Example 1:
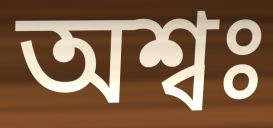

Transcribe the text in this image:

অশ্বঃ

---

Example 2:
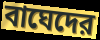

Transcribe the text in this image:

বাঘেদের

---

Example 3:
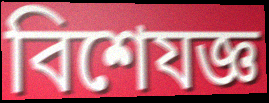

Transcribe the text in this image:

বিশেযজ্ঞ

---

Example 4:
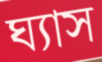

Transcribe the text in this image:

ঘ্যাস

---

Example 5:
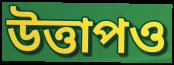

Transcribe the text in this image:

উত্তাপও